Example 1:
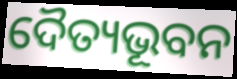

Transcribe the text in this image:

ଦୈତ୍ୟଭୂବନ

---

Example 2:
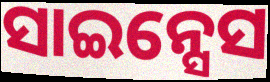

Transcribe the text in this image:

ସାଇନ୍ସେସ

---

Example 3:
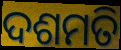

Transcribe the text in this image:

ଦଶମତି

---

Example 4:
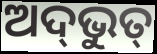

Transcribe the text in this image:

ଅଦ୍‌ଭୁତ୍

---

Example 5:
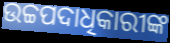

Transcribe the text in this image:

ଉଚ୍ଚପଦାଧିକାରୀଙ୍କ